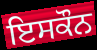
ਇਸਕੌਨ